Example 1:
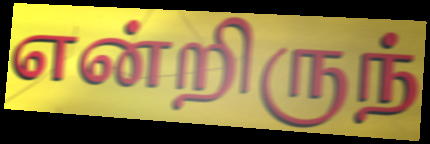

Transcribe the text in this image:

என்றிருந்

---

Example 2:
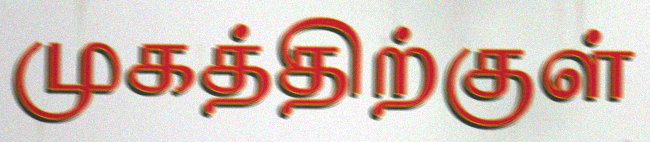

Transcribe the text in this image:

முகத்திற்குள்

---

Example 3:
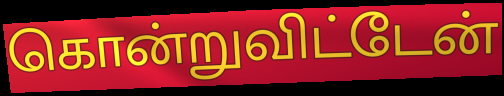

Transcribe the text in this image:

கொன்றுவிட்டேன்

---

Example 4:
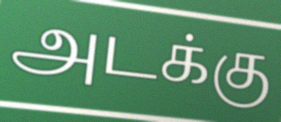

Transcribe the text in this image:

அடக்கு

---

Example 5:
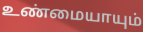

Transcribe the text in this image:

உண்மையாயும்